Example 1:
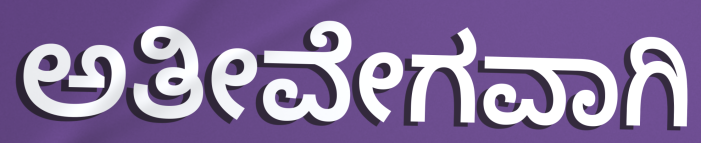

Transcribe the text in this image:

ಅತೀವೇಗವಾಗಿ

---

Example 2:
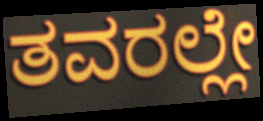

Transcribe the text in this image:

ತವರಲ್ಲೇ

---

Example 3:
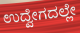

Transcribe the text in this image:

ಉದ್ವೇಗದಲ್ಲೇ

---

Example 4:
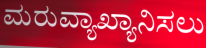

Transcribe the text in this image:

ಮರುವ್ಯಾಖ್ಯಾನಿಸಲು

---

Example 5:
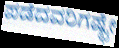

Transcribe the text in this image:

ಪಡೆದವರಿಗಷ್ಟೇ